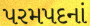
પરમપદનાં